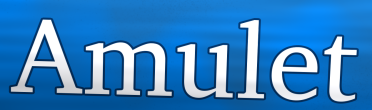
Amulet